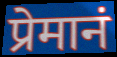
प्रेमानं